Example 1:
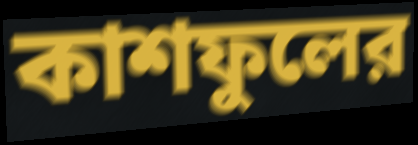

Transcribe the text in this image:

কাশফুলের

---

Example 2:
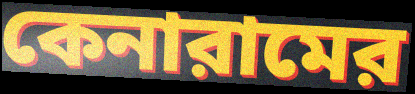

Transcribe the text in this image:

কেনারামের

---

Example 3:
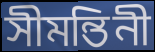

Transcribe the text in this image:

সীমন্তিনী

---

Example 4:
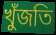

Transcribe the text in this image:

খুঁজতি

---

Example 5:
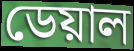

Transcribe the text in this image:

ডেয়াল